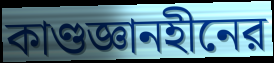
কাণ্ডজ্ঞানহীনের